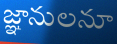
జ్ఞానులనూ